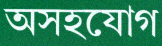
অসহযোগ